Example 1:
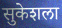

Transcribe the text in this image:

सुकेशला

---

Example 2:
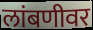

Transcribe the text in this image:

लांबणीवर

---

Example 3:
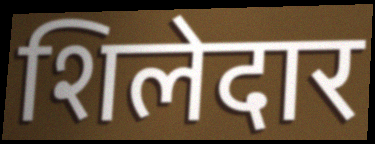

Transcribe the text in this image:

शिलेदार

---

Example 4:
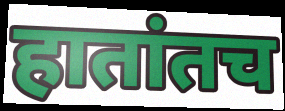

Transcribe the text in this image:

हातांतच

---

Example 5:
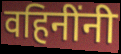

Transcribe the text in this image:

वहिनींनी